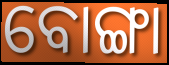
ବୋଙ୍ଗା